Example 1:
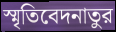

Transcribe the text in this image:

স্মৃতিবেদনাতুর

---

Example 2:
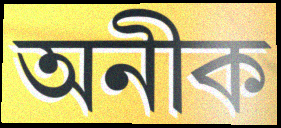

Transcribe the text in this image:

অনীক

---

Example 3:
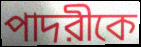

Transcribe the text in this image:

পাদরীকে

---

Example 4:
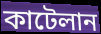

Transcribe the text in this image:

কাটেলান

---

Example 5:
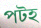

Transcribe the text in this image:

পটহ